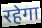
रहेगा